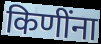
किणींना